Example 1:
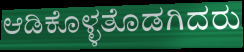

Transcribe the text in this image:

ಆಡಿಕೊಳ್ಳತೊಡಗಿದರು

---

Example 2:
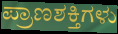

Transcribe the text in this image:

ಪ್ರಾಣಶಕ್ತಿಗಳು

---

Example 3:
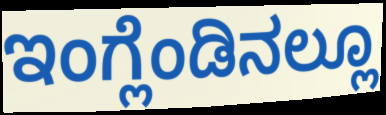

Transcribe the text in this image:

ಇಂಗ್ಲೆಂಡಿನಲ್ಲೂ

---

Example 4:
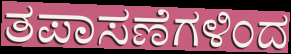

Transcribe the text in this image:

ತಪಾಸಣೆಗಳಿಂದ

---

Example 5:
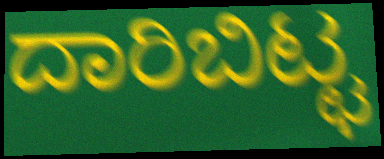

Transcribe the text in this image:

ದಾರಿಬಿಟ್ಟ